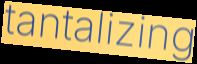
tantalizing